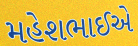
મહેશભાઈએ